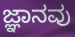
ಜ್ಞಾನವು